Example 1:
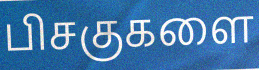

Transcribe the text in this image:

பிசகுகளை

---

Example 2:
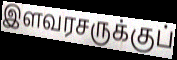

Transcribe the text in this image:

இளவரசருக்குப்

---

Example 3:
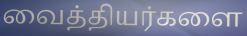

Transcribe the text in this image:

வைத்தியர்களை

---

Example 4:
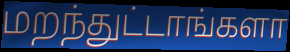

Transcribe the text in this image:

மறந்துட்டாங்களா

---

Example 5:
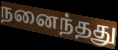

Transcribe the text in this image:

நனைந்தது